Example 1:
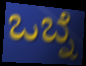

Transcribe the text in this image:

ಒಬ್ನೆ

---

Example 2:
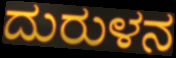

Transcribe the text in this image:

ದುರುಳನ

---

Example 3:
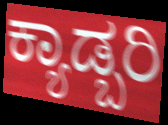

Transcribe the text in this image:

ಕ್ಯಾಡ್ಬರಿ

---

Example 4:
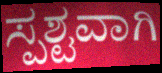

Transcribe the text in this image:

ಸ್ಪಶ್ಟವಾಗಿ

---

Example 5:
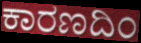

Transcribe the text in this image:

ಕಾರಣದಿಂ